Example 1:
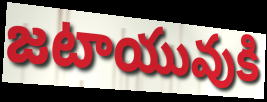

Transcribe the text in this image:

జటాయువుకి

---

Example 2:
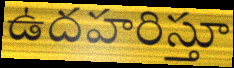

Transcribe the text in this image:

ఉదహరిస్తూ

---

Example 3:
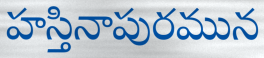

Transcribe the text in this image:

హస్తినాపురమున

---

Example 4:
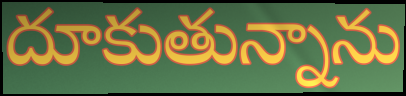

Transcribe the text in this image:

దూకుతున్నాను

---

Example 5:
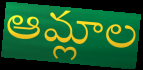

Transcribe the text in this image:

ఆమ్లాల